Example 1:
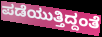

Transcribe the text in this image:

ಪಡೆಯುತ್ತಿದ್ದಂತೆ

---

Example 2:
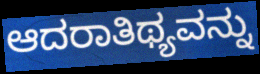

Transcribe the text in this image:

ಆದರಾತಿಥ್ಯವನ್ನು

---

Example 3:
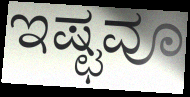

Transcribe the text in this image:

ಇಷ್ಟವೂ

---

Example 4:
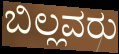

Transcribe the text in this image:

ಬಿಲ್ಲವರು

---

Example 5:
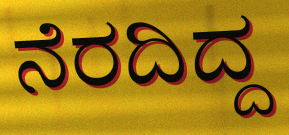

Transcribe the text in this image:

ನೆರದಿದ್ದ